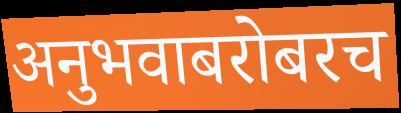
अनुभवाबरोबरच